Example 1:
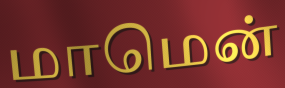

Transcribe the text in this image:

மாமென்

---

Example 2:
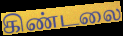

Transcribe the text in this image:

கிண்டலை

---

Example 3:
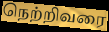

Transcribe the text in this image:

நெற்றிவரை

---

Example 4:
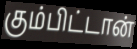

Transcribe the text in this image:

கும்பிட்டான்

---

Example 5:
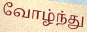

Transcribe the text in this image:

வோழ்ந்து